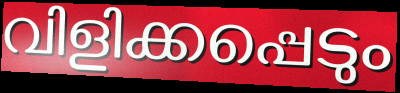
വിളിക്കപ്പെടും